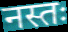
नस्तः